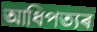
আধিপত্যৰ